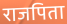
राजपिता